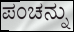
ಪಂಚನ್ನು